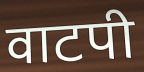
वाटपी